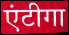
एंटीगा